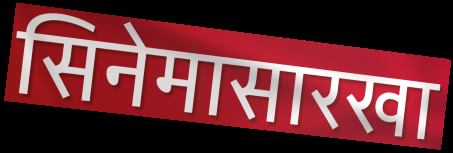
सिनेमासारखा